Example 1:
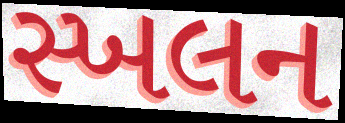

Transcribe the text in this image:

સ્ખલન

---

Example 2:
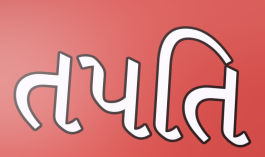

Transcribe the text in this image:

તપતિ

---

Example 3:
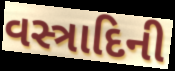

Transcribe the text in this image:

વસ્ત્રાદિની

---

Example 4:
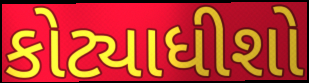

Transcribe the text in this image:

કોટ્યાધીશો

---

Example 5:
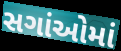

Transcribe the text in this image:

સગાંઓમાં